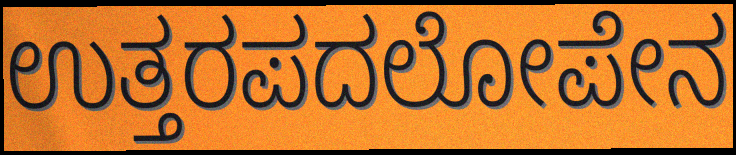
ಉತ್ತರಪದಲೋಪೇನ